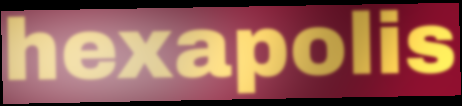
hexapolis